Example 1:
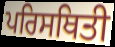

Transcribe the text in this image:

ਪਰਿਸਥਿਤੀ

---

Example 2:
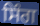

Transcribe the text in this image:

ਸਿੰਗ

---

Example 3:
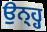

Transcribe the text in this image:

ਉਨ੍ਹ੍ਹ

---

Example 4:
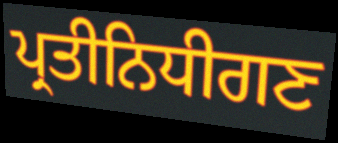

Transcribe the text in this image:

ਪ੍ਰਤੀਨਿਧੀਗਣ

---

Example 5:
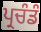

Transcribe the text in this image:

ਪ੍ਰਚੰਡੰ